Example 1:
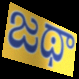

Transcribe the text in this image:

జథా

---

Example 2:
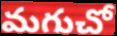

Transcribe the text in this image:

మగుచో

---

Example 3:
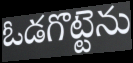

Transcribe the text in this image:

ఓడగొట్టెను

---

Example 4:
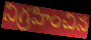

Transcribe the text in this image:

నిగ్రహించిన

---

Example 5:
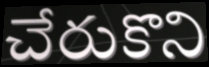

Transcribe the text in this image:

చేరుకొని